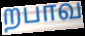
றபாவ